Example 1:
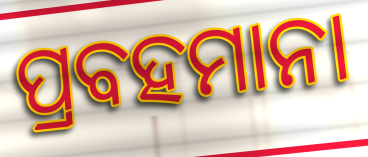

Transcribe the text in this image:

ପ୍ରବହମାନା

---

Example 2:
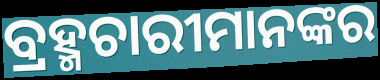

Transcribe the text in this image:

ବ୍ରହ୍ମଚାରୀମାନଙ୍କର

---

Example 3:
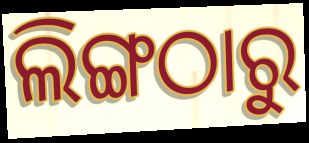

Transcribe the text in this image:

ଲିଙ୍ଗଠାରୁ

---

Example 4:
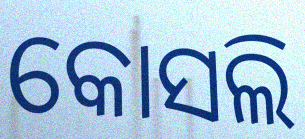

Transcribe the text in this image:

କୋସଲି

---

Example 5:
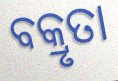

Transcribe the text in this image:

ବକ୍ରୃତା